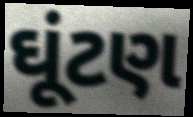
ઘૂંટણ